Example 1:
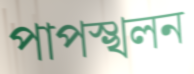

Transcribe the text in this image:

পাপস্খলন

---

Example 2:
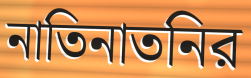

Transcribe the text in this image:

নাতিনাতনির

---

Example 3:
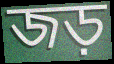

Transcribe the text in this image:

জড়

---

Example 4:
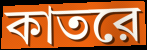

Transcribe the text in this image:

কাতরে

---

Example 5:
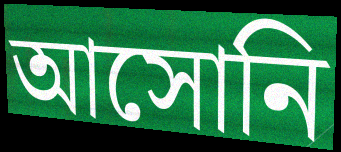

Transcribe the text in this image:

আসোনি